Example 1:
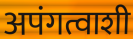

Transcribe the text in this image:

अपंगत्वाशी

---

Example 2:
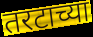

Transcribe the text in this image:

तरटाच्या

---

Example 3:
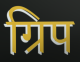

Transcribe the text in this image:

ग्रिप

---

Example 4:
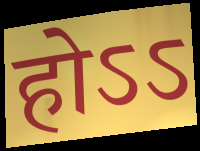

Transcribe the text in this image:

होऽऽ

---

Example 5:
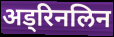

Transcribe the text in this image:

अड्रिनलिन